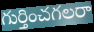
గుర్తించగలరా